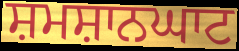
ਸ਼ਮਸ਼ਾਨਘਾਟ